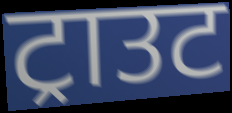
ट्राउट